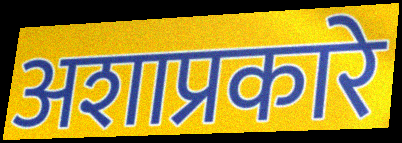
अशाप्रकारे